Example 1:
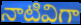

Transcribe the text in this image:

నాటివిగా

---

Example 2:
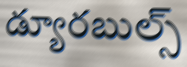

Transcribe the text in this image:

డ్యూరబుల్స్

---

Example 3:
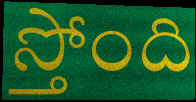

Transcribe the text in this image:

స్తోంది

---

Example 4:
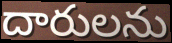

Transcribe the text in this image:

దారులను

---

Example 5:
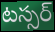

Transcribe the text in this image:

టస్సర్